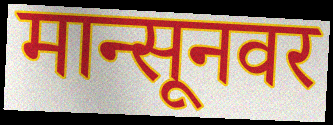
मान्सूनवर